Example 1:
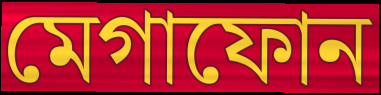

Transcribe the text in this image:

মেগাফোন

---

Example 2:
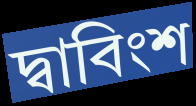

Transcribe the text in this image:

দ্বাবিংশ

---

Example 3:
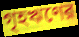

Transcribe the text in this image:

গৃহঋণের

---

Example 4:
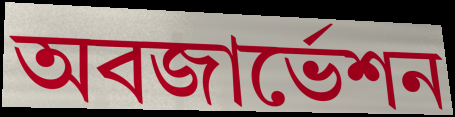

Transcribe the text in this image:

অবজার্ভেশন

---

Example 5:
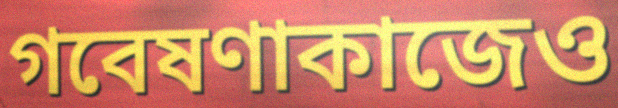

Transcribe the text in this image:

গবেষণাকাজেও